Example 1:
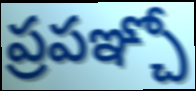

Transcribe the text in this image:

ప్రపఞ్చో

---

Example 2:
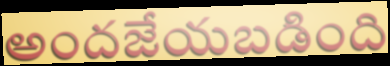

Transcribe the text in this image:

అందజేయబడింది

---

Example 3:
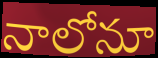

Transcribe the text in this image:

నాలోనూ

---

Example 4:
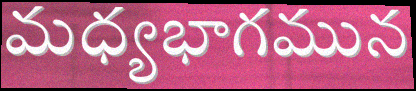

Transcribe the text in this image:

మధ్యభాగమున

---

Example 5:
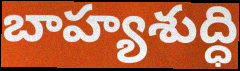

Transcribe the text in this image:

బాహ్యశుద్ధి